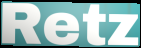
Retz